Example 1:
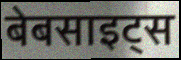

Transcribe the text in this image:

बेबसाइट्स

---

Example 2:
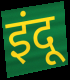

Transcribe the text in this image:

इंदू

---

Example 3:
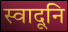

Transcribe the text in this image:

स्वादूनि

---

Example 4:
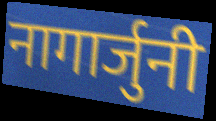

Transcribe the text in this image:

नागार्जुनी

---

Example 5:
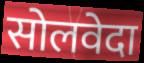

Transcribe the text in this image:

सोलवेदा